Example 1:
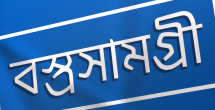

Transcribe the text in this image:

বস্ত্রসামগ্রী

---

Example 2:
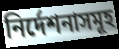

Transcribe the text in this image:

নির্দেশনাসমূহ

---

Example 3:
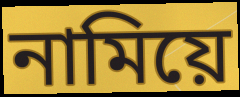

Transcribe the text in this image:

নামিয়ে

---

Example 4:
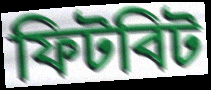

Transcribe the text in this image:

ফিটবিট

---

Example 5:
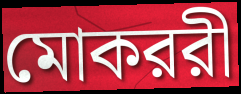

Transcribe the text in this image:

মোকররী